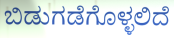
ಬಿಡುಗಡೆಗೊಳ್ಳಲಿದೆ